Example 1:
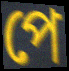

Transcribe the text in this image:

পে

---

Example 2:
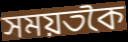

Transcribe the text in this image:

সময়তকৈ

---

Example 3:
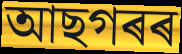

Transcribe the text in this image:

আছগৰৰ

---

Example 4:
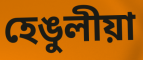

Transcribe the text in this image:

হেঙুলীয়া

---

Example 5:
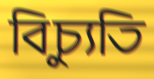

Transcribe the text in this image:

বিচ্যুতি